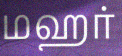
மஹர்